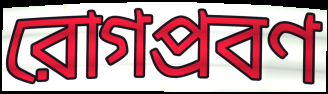
রোগপ্রবণ